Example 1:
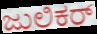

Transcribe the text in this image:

ಜುಲಿಕರ್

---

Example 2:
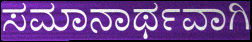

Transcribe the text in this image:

ಸಮಾನಾರ್ಥವಾಗಿ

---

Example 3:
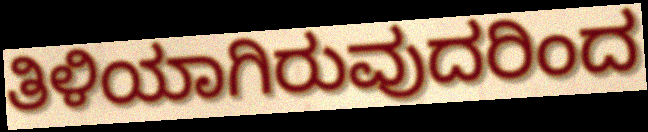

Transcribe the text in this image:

ತಿಳಿಯಾಗಿರುವುದರಿಂದ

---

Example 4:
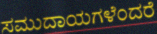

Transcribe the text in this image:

ಸಮುದಾಯಗಳೆಂದರೆ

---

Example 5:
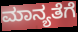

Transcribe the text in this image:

ಮಾನ್ಯತೆಗೆ